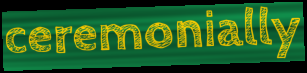
ceremonially